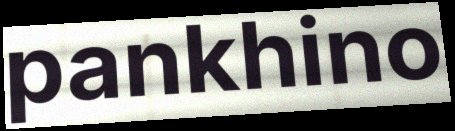
pankhino